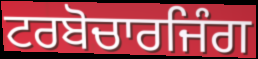
ਟਰਬੋਚਾਰਜਿੰਗ